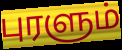
புரளும்